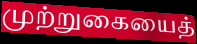
முற்றுகையைத்